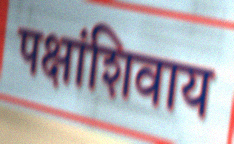
पक्षांशिवाय